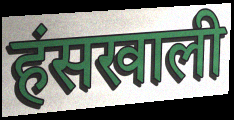
हंसखाली